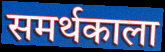
समर्थकाला